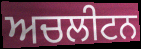
ਅਚਲੀਟਨ